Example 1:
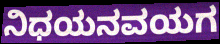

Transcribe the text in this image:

ನಿಧಯನವಯಗ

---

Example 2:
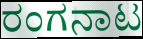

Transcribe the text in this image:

ರಂಗನಾಟ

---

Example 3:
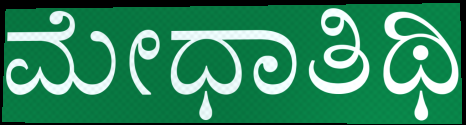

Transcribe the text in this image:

ಮೇಧಾತಿಥಿ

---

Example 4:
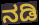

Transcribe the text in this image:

ನಡಿ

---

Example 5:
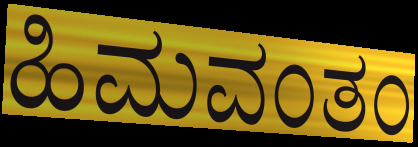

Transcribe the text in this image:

ಹಿಮವಂತಂ